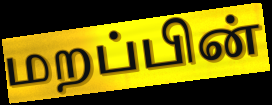
மறப்பின்